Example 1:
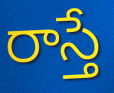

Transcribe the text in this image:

రాస్తే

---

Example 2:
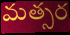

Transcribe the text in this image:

మత్సర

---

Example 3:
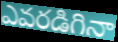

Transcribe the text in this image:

ఎవరడిగినా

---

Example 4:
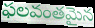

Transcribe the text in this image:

ఫలవంతమైన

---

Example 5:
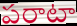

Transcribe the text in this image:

పరాటా